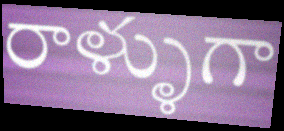
రాళ్ళుగా